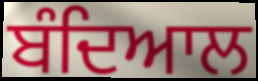
ਬੰਦਿਆਲ